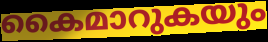
കൈമാറുകയും